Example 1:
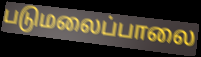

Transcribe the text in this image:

படுமலைப்பாலை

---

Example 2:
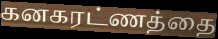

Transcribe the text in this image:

கனகரட்ணத்தை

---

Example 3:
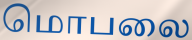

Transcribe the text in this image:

மொபலை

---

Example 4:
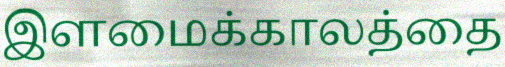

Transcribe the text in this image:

இளமைக்காலத்தை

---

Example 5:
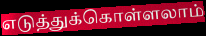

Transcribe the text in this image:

எடுத்துக்கொள்ளலாம்